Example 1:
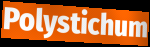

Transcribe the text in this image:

Polystichum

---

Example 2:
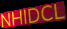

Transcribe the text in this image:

NHIDCL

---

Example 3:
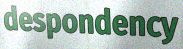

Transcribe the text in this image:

despondency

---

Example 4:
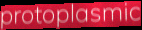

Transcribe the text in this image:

protoplasmic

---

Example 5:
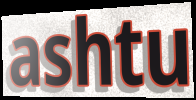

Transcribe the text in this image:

ashtu